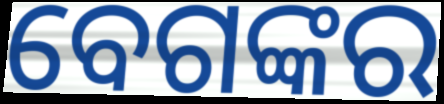
ବେଗଙ୍କର